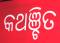
କଥଞ୍ଚିତ